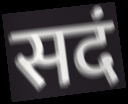
सदं